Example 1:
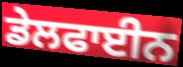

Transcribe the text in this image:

ਡੇਲਫਾਈਨ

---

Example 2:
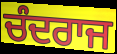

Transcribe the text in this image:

ਚੰਦਰਾਜ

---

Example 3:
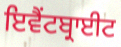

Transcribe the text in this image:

ਇਵੈਂਟਬ੍ਰਾਈਟ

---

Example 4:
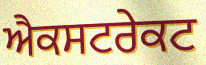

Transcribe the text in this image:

ਐਕਸਟਰੇਕਟ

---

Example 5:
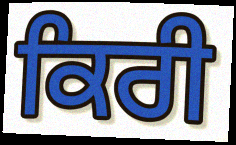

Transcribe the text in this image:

ਕਿਰੀ